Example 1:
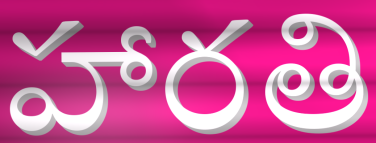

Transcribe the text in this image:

హారతి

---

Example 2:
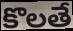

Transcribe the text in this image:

కొలతే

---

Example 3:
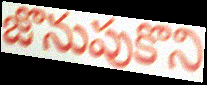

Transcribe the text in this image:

జొనుపుకొని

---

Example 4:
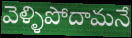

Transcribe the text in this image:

వెళ్ళిపోదామనే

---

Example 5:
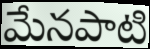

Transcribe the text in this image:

మేనపాటి